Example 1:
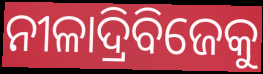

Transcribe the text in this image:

ନୀଳାଦ୍ରିବିଜେକୁ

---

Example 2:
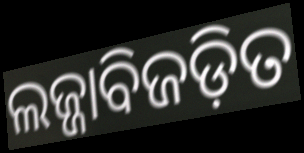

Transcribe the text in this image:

ଲଜ୍ଜାବିଜଡ଼ିତ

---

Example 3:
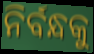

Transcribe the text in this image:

ନିର୍ବନ୍ଧକୁ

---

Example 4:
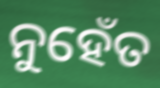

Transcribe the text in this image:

ନୁହେଁତ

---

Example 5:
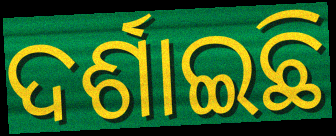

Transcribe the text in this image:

ଦର୍ଶାଇଛି